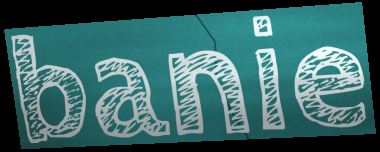
banie